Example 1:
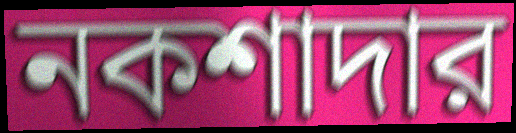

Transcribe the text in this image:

নকশাদার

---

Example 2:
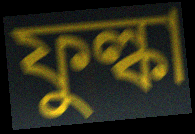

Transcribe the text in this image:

ফুল্কা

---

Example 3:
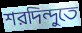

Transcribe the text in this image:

শরদিন্দুতে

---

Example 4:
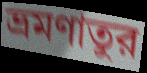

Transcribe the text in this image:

ভ্রমণাতুর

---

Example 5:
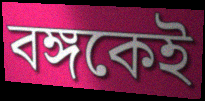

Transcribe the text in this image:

বঙ্গকেই